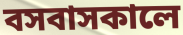
বসবাসকালে